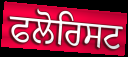
ਫਲੋਰਿਸਟ